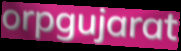
orpgujarat